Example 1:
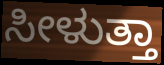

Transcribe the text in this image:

ಸೀಳುತ್ತಾ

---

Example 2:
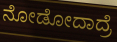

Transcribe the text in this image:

ನೋಡೋದಾದ್ರೆ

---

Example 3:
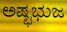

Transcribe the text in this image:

ಅಷ್ಟಭುಜ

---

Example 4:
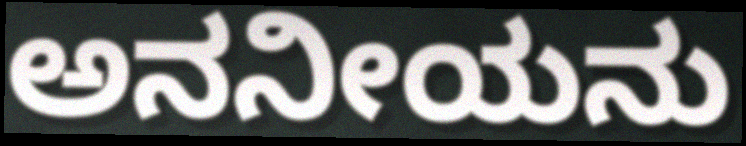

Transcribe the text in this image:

ಅನನೀಯನು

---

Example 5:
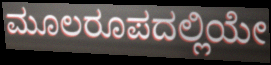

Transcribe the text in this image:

ಮೂಲರೂಪದಲ್ಲಿಯೇ